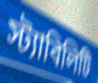
স্ট্যাবিলিটি